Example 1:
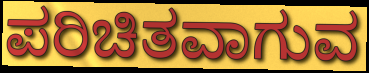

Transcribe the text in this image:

ಪರಿಚಿತವಾಗುವ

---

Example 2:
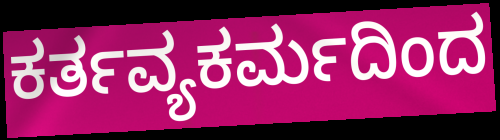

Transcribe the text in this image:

ಕರ್ತವ್ಯಕರ್ಮದಿಂದ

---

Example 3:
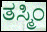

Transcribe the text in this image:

ತಸ್ಮಿಂ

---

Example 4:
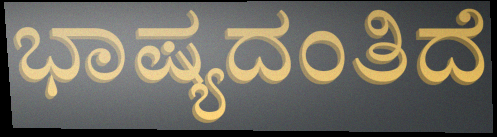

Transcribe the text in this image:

ಭಾಷ್ಯದಂತಿದೆ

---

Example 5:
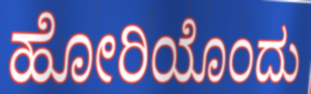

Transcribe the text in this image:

ಹೋರಿಯೊಂದು